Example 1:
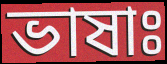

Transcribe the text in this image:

ভাষাঃ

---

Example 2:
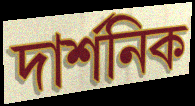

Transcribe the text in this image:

দাৰ্শনিক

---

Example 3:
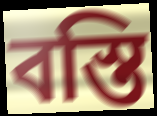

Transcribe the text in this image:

বস্তি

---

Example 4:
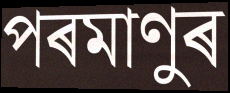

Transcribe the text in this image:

পৰমাণুৰ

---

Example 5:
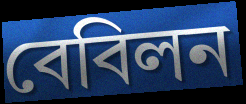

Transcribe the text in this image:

বেবিলন